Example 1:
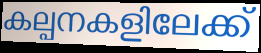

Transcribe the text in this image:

കല്പനകളിലേക്ക്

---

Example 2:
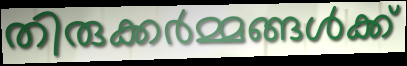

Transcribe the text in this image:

തിരുക്കർമ്മങ്ങൾക്ക്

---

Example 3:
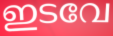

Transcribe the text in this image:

ഇടവേ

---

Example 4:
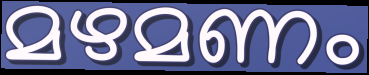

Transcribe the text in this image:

മഴമണം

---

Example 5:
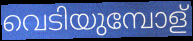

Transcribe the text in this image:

വെടിയുമ്പോള്